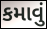
કમાવું